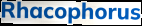
Rhacophorus